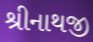
શ્રીનાથજી